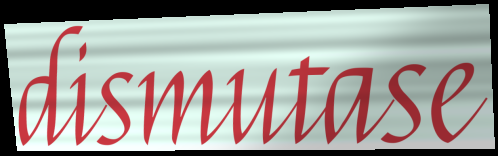
dismutase